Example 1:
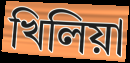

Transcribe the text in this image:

খিলিয়া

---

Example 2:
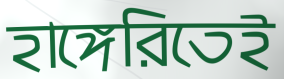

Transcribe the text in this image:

হাঙ্গেরিতেই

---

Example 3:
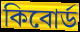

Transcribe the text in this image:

কিবোর্ড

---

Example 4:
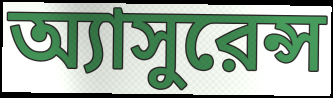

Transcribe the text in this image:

অ্যাসুরেন্স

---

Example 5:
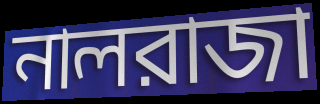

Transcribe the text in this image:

নালরাজা